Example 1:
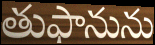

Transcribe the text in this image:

తుఫానును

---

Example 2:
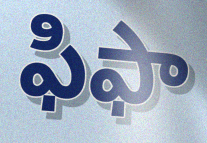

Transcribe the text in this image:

ఫిఫా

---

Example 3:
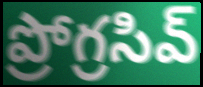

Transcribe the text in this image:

ప్రోగ్రసివ్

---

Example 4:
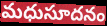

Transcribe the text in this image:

మధుసూదనం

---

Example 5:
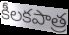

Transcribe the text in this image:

కీలకపాత్ర